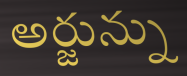
అర్జున్ను